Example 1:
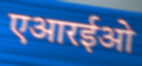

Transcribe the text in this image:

एआरईओ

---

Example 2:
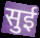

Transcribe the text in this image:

सुई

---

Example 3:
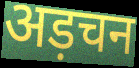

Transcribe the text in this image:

अड़चन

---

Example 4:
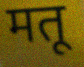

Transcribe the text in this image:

मतू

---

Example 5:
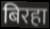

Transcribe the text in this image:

बिरहा